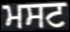
ਮਸਟ